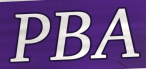
PBA